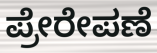
ಪ್ರೇರೇಪಣೆ